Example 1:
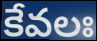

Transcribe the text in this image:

కేవలః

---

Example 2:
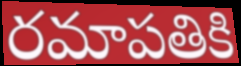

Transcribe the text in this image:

రమాపతికి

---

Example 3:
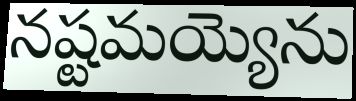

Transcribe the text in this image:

నష్టమయ్యెను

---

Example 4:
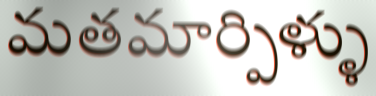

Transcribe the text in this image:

మతమార్పిళ్ళు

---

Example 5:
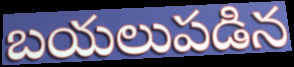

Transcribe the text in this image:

బయలుపడిన